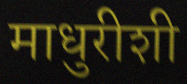
माधुरीशी